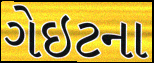
ગેઇટના